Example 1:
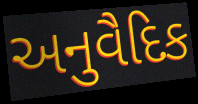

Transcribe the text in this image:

અનુવૈદિક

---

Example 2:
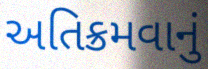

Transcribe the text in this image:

અતિક્રમવાનું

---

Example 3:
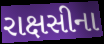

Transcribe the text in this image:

રાક્ષસીના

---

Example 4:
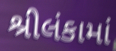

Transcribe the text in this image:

શ્રીલંકામાં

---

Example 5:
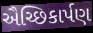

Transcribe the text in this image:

ઐચ્છિકાર્પણ